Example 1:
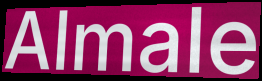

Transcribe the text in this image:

Almale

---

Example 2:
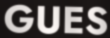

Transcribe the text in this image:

GUES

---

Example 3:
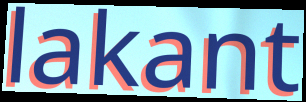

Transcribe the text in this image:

lakant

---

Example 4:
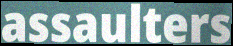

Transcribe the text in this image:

assaulters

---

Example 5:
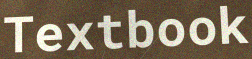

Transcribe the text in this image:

Textbook